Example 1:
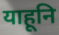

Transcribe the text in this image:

याहूनि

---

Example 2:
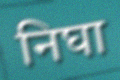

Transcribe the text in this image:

निघा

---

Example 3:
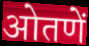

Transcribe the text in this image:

ओतणें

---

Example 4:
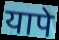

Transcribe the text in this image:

यापे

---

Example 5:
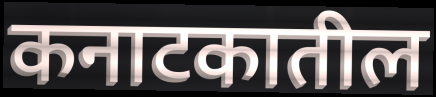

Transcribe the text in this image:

कनाटकातील